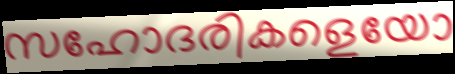
സഹോദരികളെയോ